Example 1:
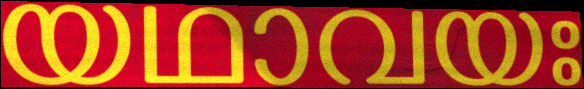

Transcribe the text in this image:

യഥാവയഃ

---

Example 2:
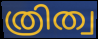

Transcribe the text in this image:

ത്രിത്വ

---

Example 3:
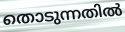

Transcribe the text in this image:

തൊടുന്നതിൽ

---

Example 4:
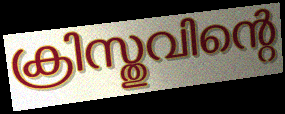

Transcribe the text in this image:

ക്രിസ്തുവിന്റെ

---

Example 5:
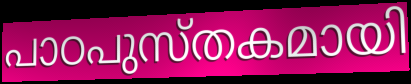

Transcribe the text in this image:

പാഠപുസ്തകമായി